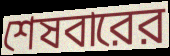
শেষবারের